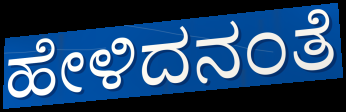
ಹೇಳಿದನಂತೆ